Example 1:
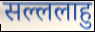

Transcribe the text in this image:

सल्ललाहु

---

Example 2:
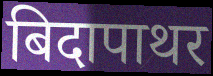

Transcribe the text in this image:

बिदापाथर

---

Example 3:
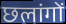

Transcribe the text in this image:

छलांगों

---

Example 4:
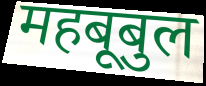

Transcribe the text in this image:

महबूबुल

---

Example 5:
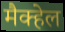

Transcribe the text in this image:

मैक्हेल